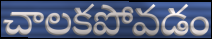
చాలకపోవడం